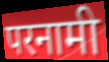
परनामी